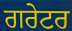
ਗਰੇਟਰ